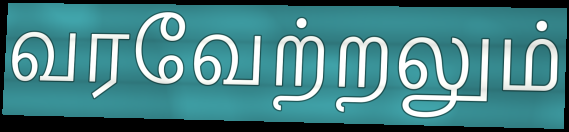
வரவேற்றலும்